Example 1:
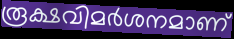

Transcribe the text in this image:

രൂക്ഷവിമർശനമാണ്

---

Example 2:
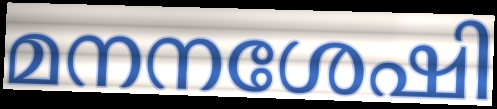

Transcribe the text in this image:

മനനശേഷി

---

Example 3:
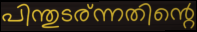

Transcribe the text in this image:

പിന്തുടര്ന്നതിന്റെ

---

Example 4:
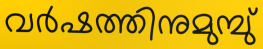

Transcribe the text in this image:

വർഷത്തിനുമുമ്പു്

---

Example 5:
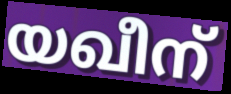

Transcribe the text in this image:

യഖീന്